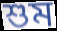
শুম